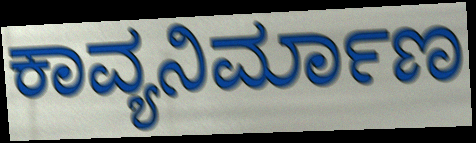
ಕಾವ್ಯನಿರ್ಮಾಣ